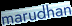
marudhan